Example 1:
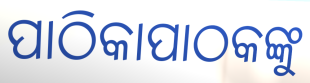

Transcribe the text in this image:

ପାଠିକାପାଠକଙ୍କୁ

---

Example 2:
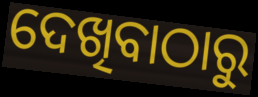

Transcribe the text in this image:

ଦେଖିବାଠାରୁ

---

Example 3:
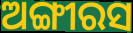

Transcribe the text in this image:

ଅଙ୍ଗୀରସ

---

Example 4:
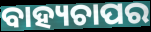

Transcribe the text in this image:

ବାହ୍ୟଚାପର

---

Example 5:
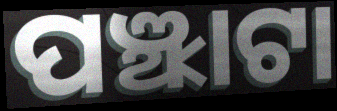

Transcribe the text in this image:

ପଞ୍ଝାଟା